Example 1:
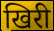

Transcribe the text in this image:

खिरी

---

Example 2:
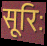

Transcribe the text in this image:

सूरिः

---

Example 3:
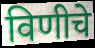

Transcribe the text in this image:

विणीचे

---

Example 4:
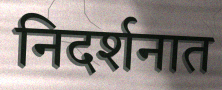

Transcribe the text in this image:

निदर्शनात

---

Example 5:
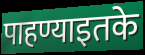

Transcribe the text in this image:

पाहण्याइतके